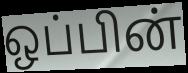
ஒப்பின்